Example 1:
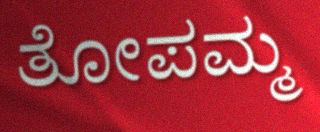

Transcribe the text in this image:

ತೋಪಮ್ಮ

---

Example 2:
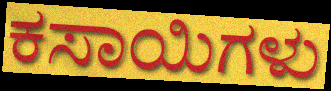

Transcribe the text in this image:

ಕಸಾಯಿಗಳು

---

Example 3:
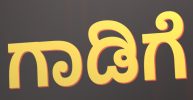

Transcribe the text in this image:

ಗಾಡಿಗೆ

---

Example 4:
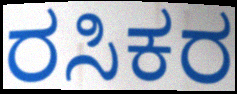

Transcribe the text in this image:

ರಸಿಕರ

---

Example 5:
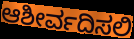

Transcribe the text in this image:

ಆಶೀರ್ವದಿಸಲಿ